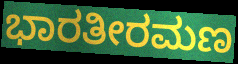
ಭಾರತೀರಮಣ